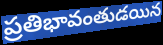
ప్రతిభావంతుడయిన